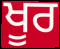
ਖੂਰ